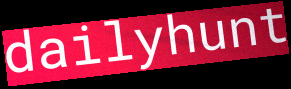
dailyhunt